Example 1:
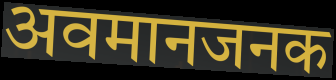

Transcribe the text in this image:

अवमानजनक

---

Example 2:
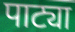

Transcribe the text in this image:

पाट्या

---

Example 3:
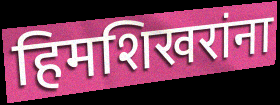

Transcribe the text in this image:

हिमशिखरांना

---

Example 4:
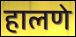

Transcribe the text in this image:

हालणे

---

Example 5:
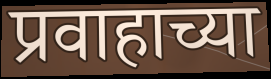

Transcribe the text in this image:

प्रवाहाच्या